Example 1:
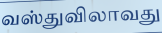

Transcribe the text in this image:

வஸ்துவிலாவது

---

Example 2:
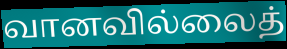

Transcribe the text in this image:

வானவில்லைத்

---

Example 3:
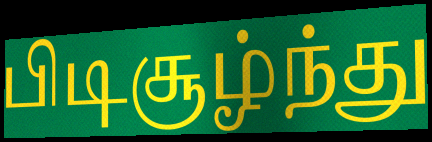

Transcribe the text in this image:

பிடிசூழ்ந்து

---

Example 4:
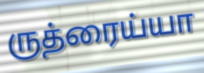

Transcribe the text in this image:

ருத்ரைய்யா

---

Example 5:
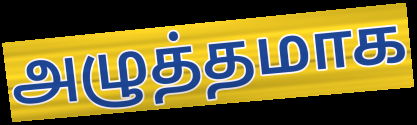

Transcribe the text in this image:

அழுத்தமாக